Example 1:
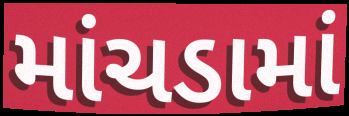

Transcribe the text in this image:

માંચડામાં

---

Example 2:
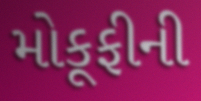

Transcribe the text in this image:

મોકૂફીની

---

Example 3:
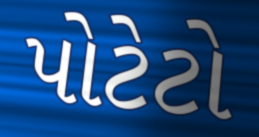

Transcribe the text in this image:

પોટેટો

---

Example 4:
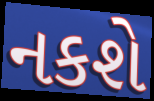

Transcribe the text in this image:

નકશે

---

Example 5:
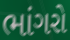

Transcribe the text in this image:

ભાંગરો